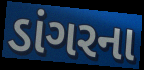
ડાંગરના